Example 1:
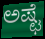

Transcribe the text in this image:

ಅಷ್ಟೆ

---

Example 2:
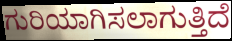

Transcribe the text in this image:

ಗುರಿಯಾಗಿಸಲಾಗುತ್ತಿದೆ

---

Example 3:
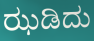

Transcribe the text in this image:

ಝಡಿದು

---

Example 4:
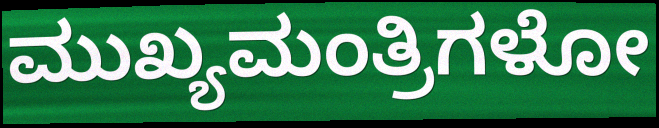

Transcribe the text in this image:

ಮುಖ್ಯಮಂತ್ರಿಗಳೋ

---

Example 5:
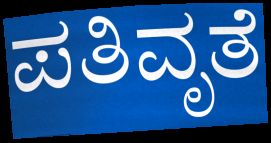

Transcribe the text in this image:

ಪತಿವೃತೆ